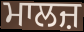
ਮਾਲਜ਼